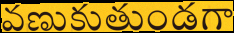
వణుకుతుండగా